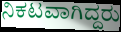
ನಿಕಟವಾಗಿದ್ದರು